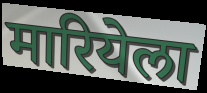
मारियेला